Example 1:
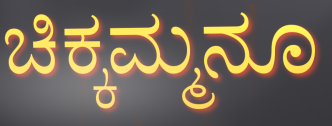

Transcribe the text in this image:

ಚಿಕ್ಕಮ್ಮನೂ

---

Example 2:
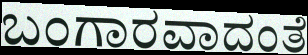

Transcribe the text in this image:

ಬಂಗಾರವಾದಂತೆ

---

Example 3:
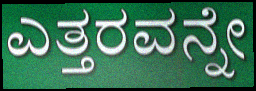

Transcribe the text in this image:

ಎತ್ತರವನ್ನೇ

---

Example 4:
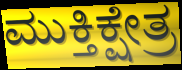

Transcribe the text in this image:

ಮುಕ್ತಿಕ್ಷೇತ್ರ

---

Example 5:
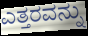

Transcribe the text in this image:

ಎತ್ತರವನ್ನು